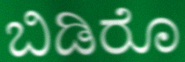
ಬಿಡಿರೊ